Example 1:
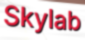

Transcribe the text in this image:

Skylab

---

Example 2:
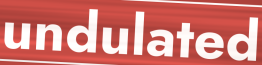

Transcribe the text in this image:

undulated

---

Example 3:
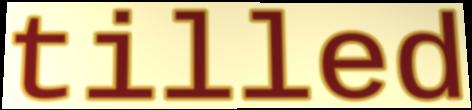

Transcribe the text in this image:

tilled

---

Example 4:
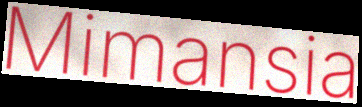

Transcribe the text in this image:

Mimansia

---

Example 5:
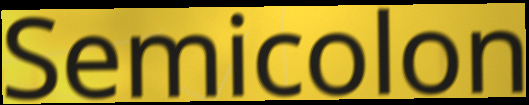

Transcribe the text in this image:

Semicolon